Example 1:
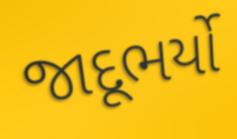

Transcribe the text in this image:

જાદૂભર્યો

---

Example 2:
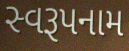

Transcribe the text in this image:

સ્વરૂપનામ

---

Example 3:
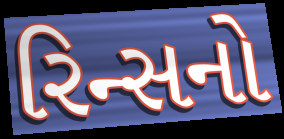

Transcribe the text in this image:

રિન્સનો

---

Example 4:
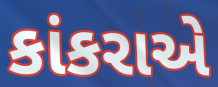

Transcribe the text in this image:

કાંકરાએ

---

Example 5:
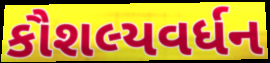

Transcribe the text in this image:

કૌશલ્યવર્ધન